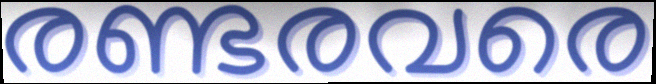
രണ്ടരവരെ